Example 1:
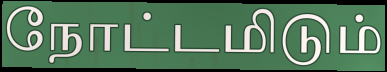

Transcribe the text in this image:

நோட்டமிடும்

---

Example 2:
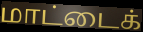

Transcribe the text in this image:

மாட்டைக்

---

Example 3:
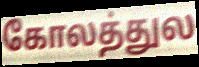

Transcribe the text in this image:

கோலத்துல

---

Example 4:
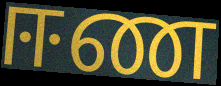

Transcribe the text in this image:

ஈண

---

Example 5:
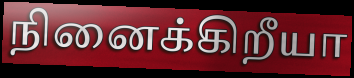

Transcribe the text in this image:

நினைக்கிறீயா